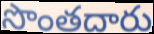
సొంతదారు